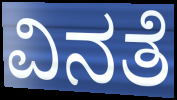
ವಿನತೆ